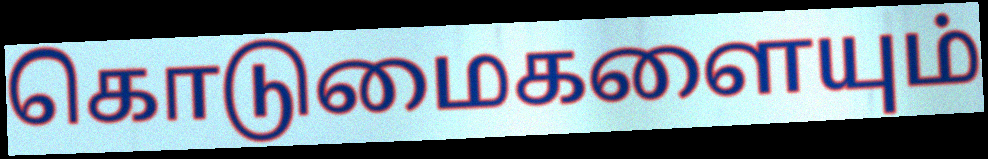
கொடுமைகளையும்